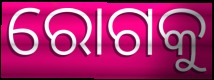
ରୋଗକୁ